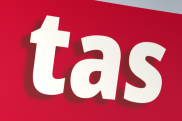
tas